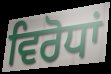
ਵਿਰੋਧਾਂ